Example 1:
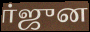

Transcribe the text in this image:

ர்ஜுன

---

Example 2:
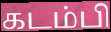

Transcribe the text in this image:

கடம்பி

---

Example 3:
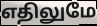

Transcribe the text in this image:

எதிலுமே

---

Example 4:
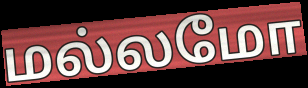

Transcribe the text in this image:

மல்லமோ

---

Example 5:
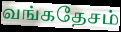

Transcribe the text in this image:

வங்கதேசம்